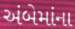
અંબેમાંના